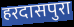
हरदासपुरा